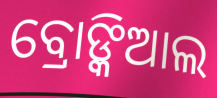
ବ୍ରୋଙ୍କିଆଲ